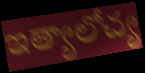
ఇత్యాలోచ్య